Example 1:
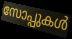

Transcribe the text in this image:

സോപ്പുകൾ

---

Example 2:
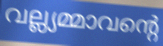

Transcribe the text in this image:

വല്ല്യമ്മാവന്റെ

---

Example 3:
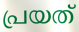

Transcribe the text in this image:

പ്രയത്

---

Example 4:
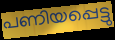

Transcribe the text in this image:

പണിയപ്പെട്ടു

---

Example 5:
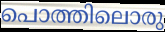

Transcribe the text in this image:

പൊത്തിലൊരു